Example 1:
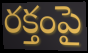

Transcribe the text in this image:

రక్తంపై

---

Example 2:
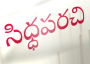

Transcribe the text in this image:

సిధ్ధపరచి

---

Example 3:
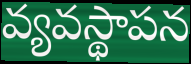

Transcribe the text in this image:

వ్యవస్థాపన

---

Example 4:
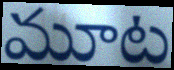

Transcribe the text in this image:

మూట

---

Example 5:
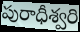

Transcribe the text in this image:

పురాధీశ్వరి